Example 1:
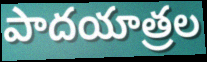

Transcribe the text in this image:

పాదయాత్రల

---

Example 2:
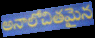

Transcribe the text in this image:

అనాలోచితమైన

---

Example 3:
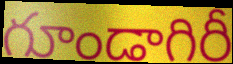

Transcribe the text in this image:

గూండాగిరీ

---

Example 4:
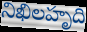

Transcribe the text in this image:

నిఖిలహృది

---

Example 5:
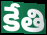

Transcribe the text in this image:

కేతి